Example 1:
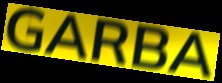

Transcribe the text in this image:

GARBA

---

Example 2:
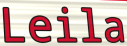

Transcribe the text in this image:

Leila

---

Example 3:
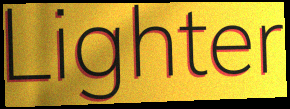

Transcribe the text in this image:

Lighter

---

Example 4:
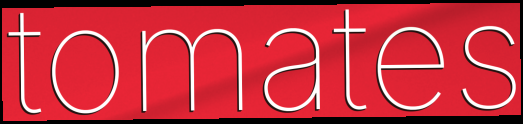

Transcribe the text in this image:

tomates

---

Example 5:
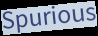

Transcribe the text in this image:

Spurious